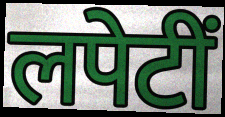
लपेटीं